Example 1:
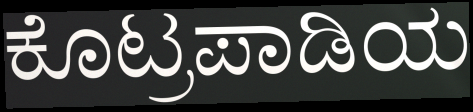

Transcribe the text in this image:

ಕೊಟ್ರಪಾಡಿಯ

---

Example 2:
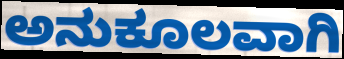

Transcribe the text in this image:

ಅನುಕೂಲವಾಗಿ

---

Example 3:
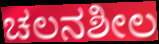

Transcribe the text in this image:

ಚಲನಶೀಲ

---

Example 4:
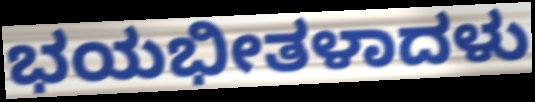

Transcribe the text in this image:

ಭಯಭೀತಳಾದಳು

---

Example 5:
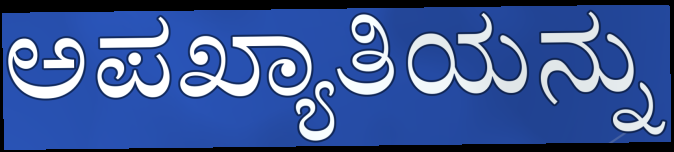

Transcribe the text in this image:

ಅಪಖ್ಯಾತಿಯನ್ನು